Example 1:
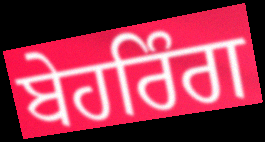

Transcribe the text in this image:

ਬੇਹਰਿੰਗ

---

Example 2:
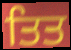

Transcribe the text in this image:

ਤਿਤ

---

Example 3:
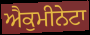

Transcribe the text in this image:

ਐਕੁਮੀਨੇਟਾ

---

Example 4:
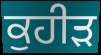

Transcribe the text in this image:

ਕੁਹੀੜ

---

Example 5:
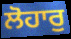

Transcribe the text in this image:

ਲੋਹਾਰੁ